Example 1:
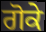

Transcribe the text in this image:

ਗੋਕੇ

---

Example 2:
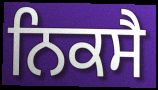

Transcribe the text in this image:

ਨਿਕਸੈ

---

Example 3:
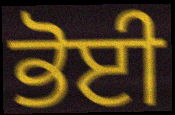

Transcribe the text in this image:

ਭੋਈ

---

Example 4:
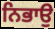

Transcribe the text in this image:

ਨਿਭਾਉ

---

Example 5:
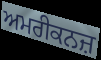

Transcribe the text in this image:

ਅਮਰੀਕਨਜ਼